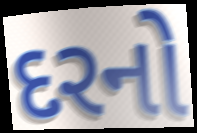
દરનો